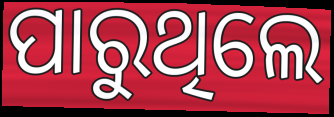
ପାରୁଥିଲେ